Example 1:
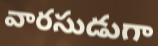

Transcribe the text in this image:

వారసుడుగా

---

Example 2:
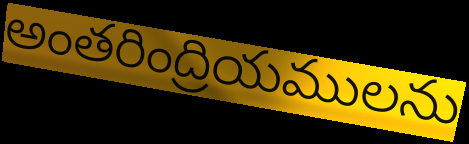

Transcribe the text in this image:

అంతరింద్రియములను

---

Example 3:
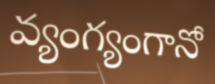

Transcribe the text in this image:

వ్యంగ్యంగానో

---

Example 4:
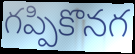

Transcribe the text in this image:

గప్పికొనగ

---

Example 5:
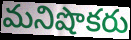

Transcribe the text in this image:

మనిషొకరు